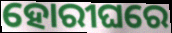
ହୋରୀଘରେ